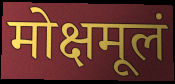
मोक्षमूलं